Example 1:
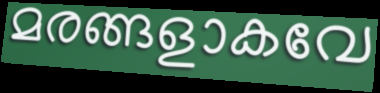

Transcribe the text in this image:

മരങ്ങളാകവേ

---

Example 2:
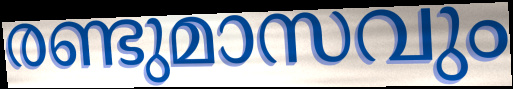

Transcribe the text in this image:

രണ്ടുമാസവും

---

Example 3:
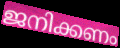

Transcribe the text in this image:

ജനിക്കണം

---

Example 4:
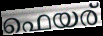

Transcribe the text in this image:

ഫെയര്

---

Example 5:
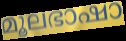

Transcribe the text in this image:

മൂലഭാഷാ